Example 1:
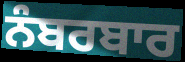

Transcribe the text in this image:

ਨੰਬਰਬਾਰ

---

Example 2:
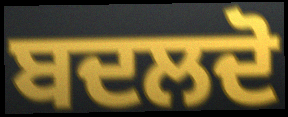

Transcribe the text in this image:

ਬਦਲਦੋ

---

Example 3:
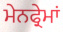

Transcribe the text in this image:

ਮੇਨਫ੍ਰੇਮਾਂ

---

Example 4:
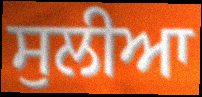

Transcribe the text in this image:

ਸੁਲੀਆ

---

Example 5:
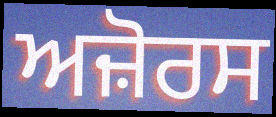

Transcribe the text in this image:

ਅਜ਼ੋਰਸ